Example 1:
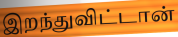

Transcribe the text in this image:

இறந்துவிட்டான்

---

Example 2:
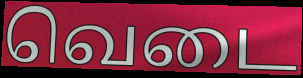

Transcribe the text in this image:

வெடை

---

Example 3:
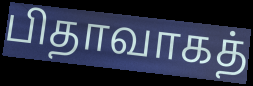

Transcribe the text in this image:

பிதாவாகத்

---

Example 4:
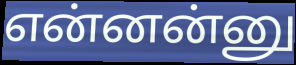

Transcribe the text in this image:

என்னன்னு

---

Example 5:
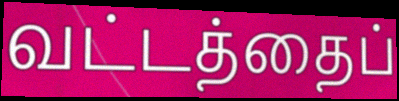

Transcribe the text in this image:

வட்டத்தைப்